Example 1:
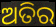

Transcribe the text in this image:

ଅତିର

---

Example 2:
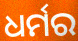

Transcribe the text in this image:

ଧର୍ମର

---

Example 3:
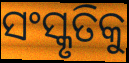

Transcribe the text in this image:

ସଂସ୍କୃତିକୁ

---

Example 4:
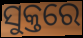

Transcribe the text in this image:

ସୁକ୍ତରେ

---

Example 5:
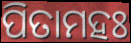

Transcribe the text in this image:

ପିତାମହଃ